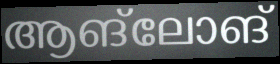
ആങ്‌ലോങ്